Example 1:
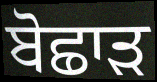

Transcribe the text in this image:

ਬੋਛਾੜ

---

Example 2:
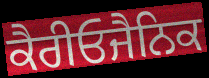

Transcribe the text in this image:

ਕੈਰੀਓਜੈਨਿਕ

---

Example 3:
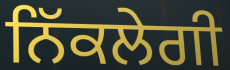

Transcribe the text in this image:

ਨਿੱਕਲੇਗੀ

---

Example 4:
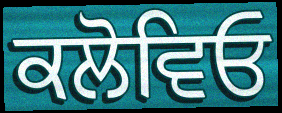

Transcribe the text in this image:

ਕਲੋਵਿਓ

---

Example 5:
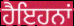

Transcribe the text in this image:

ਹੈਇਹਨਾਂ